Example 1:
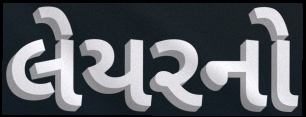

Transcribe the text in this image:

લેયરનો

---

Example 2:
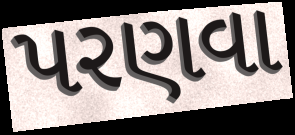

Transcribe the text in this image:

પરણવા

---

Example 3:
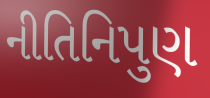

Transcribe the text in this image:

નીતિનિપુણ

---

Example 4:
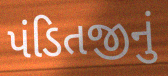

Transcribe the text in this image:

પંડિતજીનું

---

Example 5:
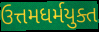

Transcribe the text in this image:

ઉત્તમધર્મયુક્ત